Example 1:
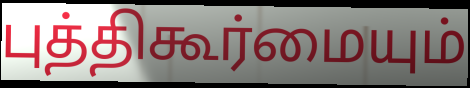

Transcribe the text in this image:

புத்திகூர்மையும்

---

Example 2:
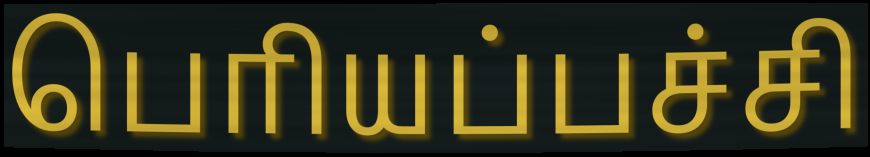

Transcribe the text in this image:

பெரியப்பச்சி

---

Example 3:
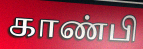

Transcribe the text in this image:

காண்பி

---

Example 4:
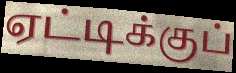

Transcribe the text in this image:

ஏட்டிக்குப்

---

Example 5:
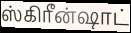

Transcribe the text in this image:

ஸ்கிரீன்ஷாட்